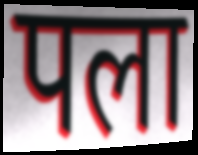
पला